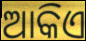
ଆକିଏ